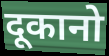
दूकानो